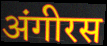
अंगीरस